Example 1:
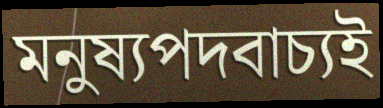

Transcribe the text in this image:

মনুষ্যপদবাচ্যই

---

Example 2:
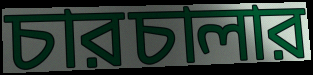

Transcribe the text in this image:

চারচালার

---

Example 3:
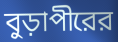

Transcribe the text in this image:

বুড়াপীরের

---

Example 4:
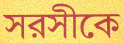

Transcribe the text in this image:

সরসীকে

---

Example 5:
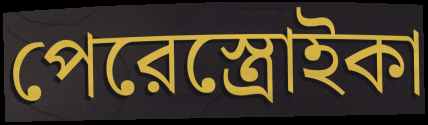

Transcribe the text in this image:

পেরেস্ত্রোইকা